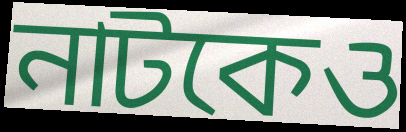
নাটকেও